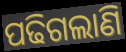
ପଢିଗଲାଣି